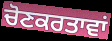
ਚੋਣਕਰਤਾਵਾਂ